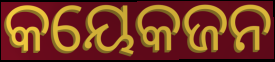
କୟେକଜନ